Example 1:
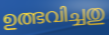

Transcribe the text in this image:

ഉത്ഭവിച്ചതു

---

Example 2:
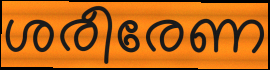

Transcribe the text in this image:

ശരീരേണ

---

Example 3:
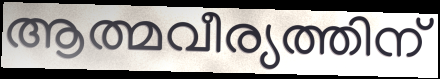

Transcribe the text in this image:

ആത്മവീര്യത്തിന്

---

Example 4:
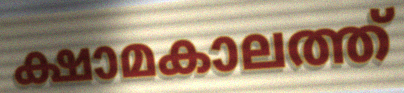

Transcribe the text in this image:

ക്ഷാമകാലത്ത്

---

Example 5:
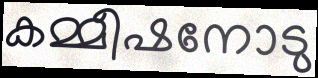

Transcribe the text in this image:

കമ്മീഷനോടു